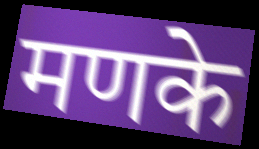
मणके